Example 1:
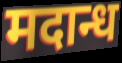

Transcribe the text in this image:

मदान्ध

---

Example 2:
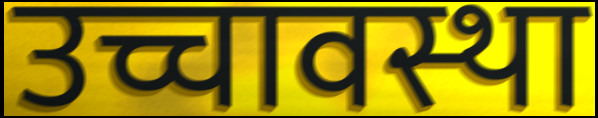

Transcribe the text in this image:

उच्चावस्था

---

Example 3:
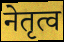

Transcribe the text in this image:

नेतृत्व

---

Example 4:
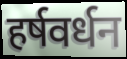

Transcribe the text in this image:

हर्षवर्धन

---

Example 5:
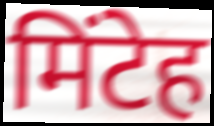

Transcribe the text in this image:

मिंटेह